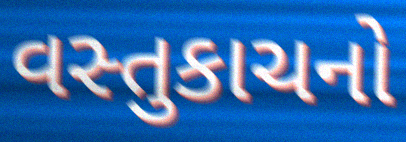
વસ્તુકાચનો